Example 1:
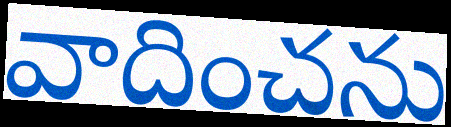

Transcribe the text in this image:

వాదించను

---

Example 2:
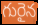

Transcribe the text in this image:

గురైన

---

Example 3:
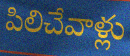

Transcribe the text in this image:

పిలిచేవాళ్లు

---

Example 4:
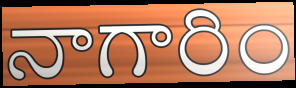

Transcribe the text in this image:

నాగారిం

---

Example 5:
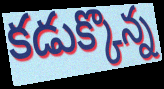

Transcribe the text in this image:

కడుక్కొన్న